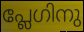
പ്ലേഗിനു